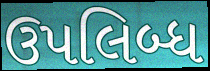
ઉપલિબ્ધ